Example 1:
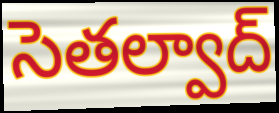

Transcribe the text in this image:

సెతల్వాద్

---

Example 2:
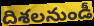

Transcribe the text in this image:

దిశలనుండీ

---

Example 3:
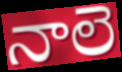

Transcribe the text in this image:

నాలె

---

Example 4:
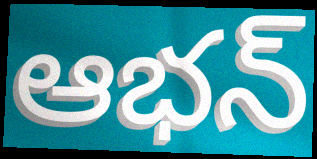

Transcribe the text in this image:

ఆభన్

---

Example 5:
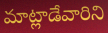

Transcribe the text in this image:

మాట్లాడేవారిని